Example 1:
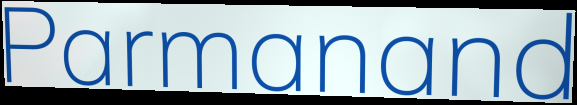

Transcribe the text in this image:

Parmanand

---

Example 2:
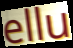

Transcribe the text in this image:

ellu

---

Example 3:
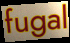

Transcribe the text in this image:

fugal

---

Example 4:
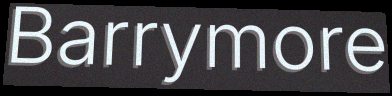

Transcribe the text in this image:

Barrymore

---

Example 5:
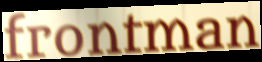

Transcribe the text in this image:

frontman